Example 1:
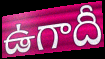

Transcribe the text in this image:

ఉగాదీ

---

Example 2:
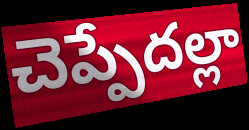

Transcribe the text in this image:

చెప్పేదల్లా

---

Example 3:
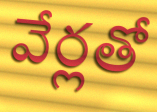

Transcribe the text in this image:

వేర్లతో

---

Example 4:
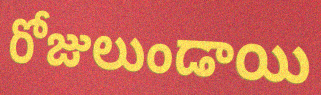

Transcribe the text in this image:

రోజులుండాయి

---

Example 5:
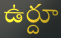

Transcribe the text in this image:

ఉర్దూ